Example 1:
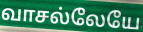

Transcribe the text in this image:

வாசல்லேயே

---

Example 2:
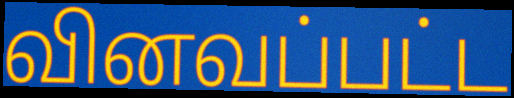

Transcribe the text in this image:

வினவப்பட்ட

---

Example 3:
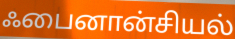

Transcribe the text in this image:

ஃபைனான்சியல்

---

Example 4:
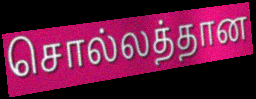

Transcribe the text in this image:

சொல்லத்தான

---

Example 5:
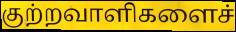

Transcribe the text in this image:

குற்றவாளிகளைச்